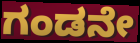
ಗಂಡನೇ